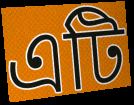
এটি